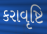
કરાવૃષ્ટિ